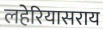
लहेरियासराय